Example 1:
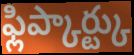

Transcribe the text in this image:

ఫ్లిప్కార్ట్కు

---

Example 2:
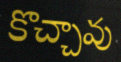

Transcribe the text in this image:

కొచ్చావు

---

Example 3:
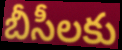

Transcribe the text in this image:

బీసీలకు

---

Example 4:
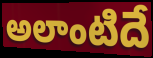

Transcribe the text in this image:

అలాంటిదే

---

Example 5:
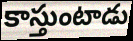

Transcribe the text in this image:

కాస్తుంటాడు